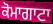
ਕੋਮਾਗਾਟਾ